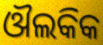
ଔଲକିକ